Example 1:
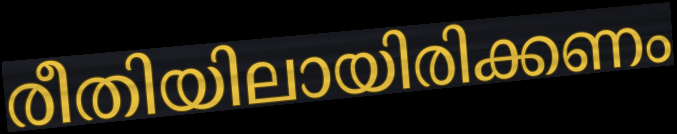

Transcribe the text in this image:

രീതിയിലായിരിക്കണം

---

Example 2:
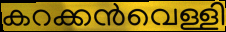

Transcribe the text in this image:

കറക്കൻവെള്ളി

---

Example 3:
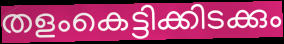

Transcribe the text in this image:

തളംകെട്ടിക്കിടക്കും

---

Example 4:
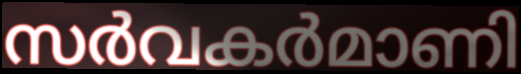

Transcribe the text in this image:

സർവകർമാണി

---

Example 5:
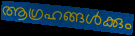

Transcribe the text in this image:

ആഗ്രഹങ്ങൾക്കും